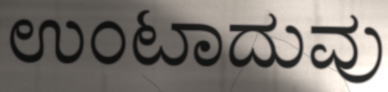
ಉಂಟಾದುವು